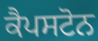
ਕੈਪਸਟੋਨ